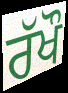
ਰੱਖੌ